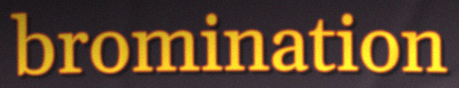
bromination